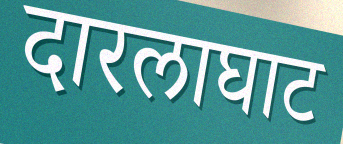
दारलाघाट